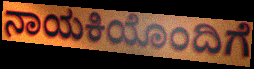
ನಾಯಕಿಯೊಂದಿಗೆ